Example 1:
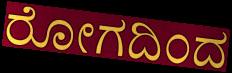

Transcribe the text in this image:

ರೋಗದಿಂದ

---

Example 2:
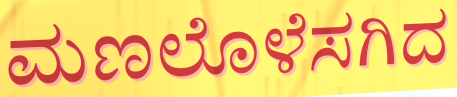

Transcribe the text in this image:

ಮಣಲೊಳೆಸಗಿದ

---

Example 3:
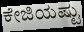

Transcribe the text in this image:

ಕೇಜಿಯಷ್ಟು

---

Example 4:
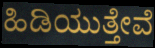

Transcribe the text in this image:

ಹಿಡಿಯುತ್ತೇವೆ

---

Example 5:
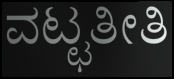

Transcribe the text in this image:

ವಟ್ಟತೀತಿ